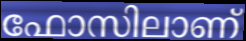
ഫോസിലാണ്